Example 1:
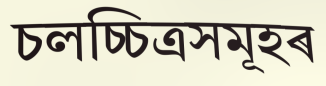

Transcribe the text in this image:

চলচ্চিত্ৰসমূহৰ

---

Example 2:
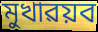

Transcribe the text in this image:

মুখাৱয়ব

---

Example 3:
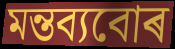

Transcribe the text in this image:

মন্তব্যবোৰ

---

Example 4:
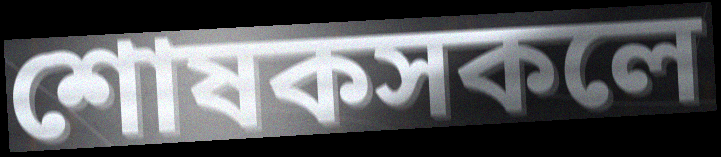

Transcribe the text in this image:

শোষকসকলে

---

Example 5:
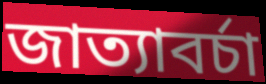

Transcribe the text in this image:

জাত্যাবৰ্চা